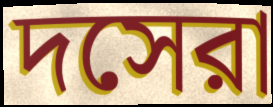
দসেরা